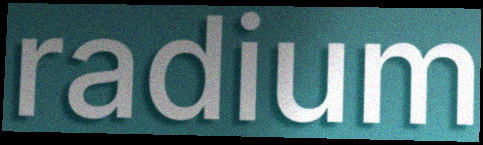
radium